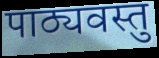
पाठ्यवस्तु